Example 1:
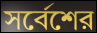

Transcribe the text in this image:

সর্বেশের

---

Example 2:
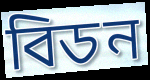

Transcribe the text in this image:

বিডন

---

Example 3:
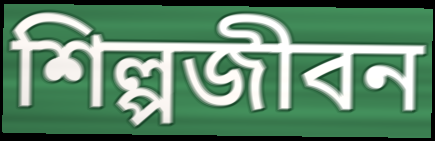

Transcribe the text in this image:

শিল্পজীবন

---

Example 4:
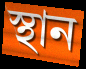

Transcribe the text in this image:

স্থান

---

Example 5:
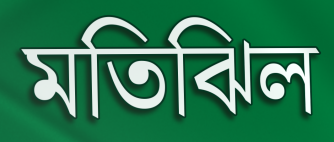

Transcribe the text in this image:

মতিঝিল